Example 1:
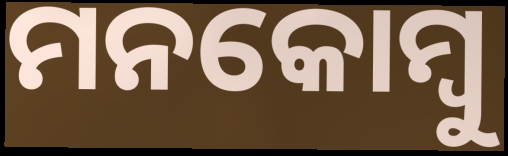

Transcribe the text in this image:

ମନକୋମ୍ବୁ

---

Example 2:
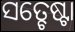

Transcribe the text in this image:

ସତ୍ଚେଷ୍ଟା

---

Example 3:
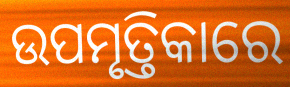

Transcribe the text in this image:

ଉପମୃତ୍ତିକାରେ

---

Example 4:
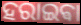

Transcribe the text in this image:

ହରାଇଵା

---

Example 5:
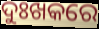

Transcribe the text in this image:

ଦୁଃଖକରେ